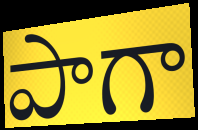
పాగా